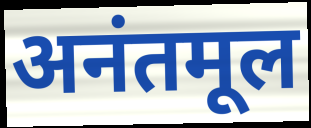
अनंतमूल